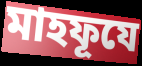
মাহফূযে